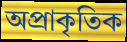
অপ্রাকৃতিক